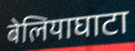
बेलियाघाटा